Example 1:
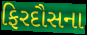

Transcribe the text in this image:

ફિરદૌસના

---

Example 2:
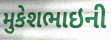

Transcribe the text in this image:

મુકેશભાઇની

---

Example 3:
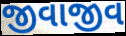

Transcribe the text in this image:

જીવાજીવ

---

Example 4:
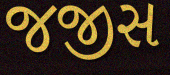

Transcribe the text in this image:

જજીસ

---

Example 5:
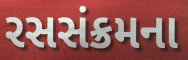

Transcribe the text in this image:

રસસંક્રમના